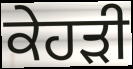
ਕੇਹੜੀ